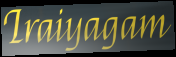
Iraiyagam